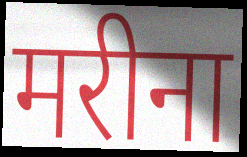
मरीना